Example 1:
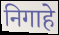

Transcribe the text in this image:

निगाहे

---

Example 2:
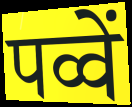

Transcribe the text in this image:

पव्वें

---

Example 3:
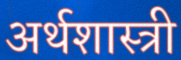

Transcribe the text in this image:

अर्थशास्त्री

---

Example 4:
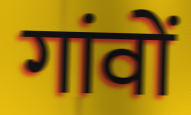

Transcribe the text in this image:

गांवों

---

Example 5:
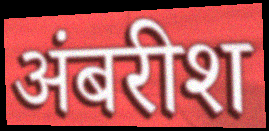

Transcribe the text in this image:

अंबरीश